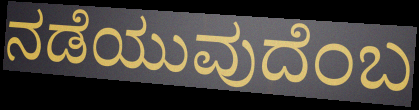
ನಡೆಯುವುದೆಂಬ